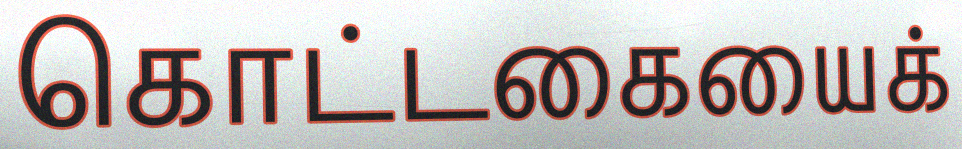
கொட்டகையைக்